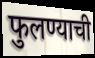
फुलण्याची